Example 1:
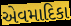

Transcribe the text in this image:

એવમાદિકા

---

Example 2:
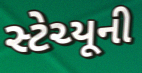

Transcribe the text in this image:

સ્ટેચ્યૂની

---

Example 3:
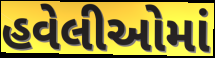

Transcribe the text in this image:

હવેલીઓમાં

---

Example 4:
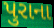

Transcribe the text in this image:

પુરાના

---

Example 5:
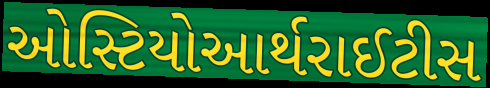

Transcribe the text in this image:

ઓસ્ટિયોઆર્થરાઈટીસ